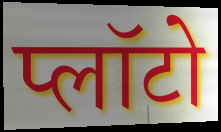
प्लॉटो